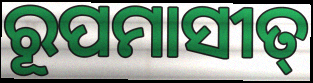
ରୂପମାସୀତ୍